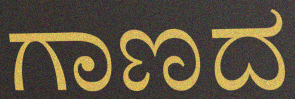
ಗಾಣದ